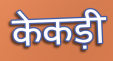
केकड़ी